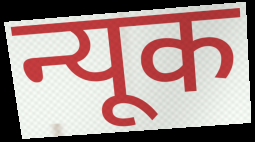
न्यूक